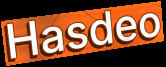
Hasdeo